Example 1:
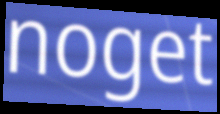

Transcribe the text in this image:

noget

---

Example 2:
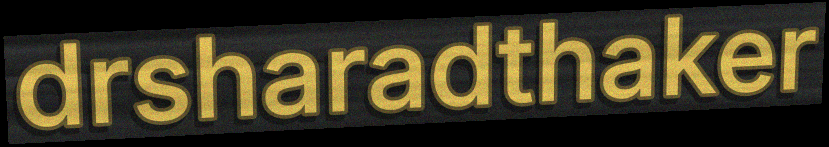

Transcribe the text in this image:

drsharadthaker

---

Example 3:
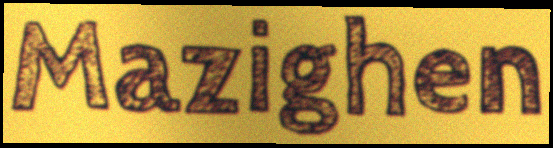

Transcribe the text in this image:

Mazighen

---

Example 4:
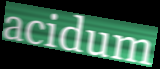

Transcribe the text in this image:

acidum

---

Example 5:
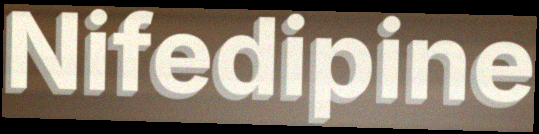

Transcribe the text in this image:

Nifedipine